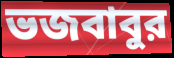
ভজবাবুর